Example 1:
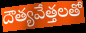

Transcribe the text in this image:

దౌత్యవేత్తలతో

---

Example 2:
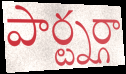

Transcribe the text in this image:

పార్ట్నర్గా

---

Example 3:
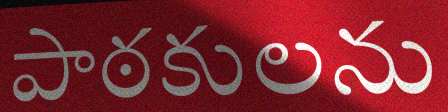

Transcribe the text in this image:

పాఠకులను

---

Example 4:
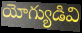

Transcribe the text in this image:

యోగ్యుడివి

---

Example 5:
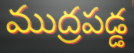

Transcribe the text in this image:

ముద్రపడ్డ